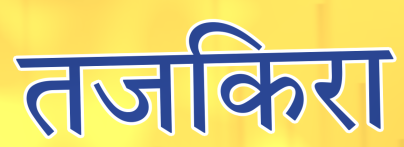
तजकिरा